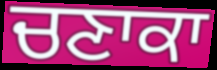
ਚਣਾਕਾ